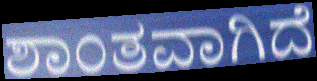
ಶಾಂತವಾಗಿದೆ